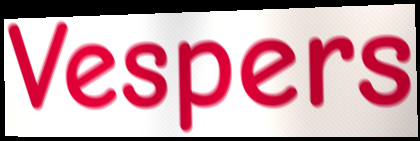
Vespers